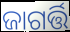
ଜାଗର୍ତ୍ତି